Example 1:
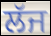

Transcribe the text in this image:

ਲੱਜ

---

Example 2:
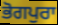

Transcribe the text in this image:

ਭੋਗਪੁਰਾ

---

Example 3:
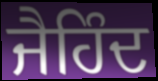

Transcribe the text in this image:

ਜੈਹਿੰਦ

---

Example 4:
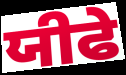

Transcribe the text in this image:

ਯੀਫੇ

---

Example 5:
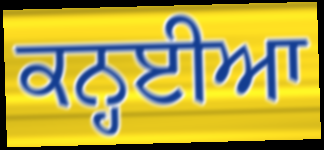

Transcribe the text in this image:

ਕਨ੍ਹਈਆ